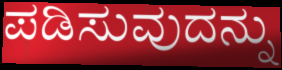
ಪಡಿಸುವುದನ್ನು